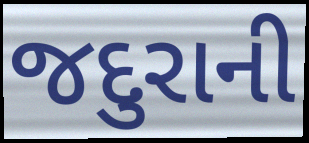
જદુરાની